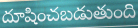
దూషించబడుతుంది